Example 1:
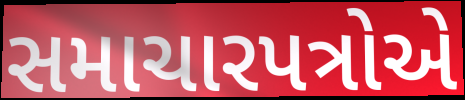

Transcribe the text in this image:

સમાચારપત્રોએ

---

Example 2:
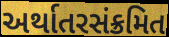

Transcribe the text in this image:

અર્થાતરસંક્રમિત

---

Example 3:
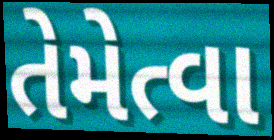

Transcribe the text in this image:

તેમેત્વા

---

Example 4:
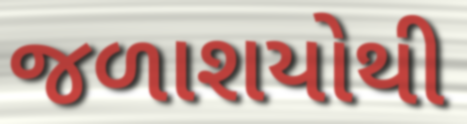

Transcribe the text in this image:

જળાશયોથી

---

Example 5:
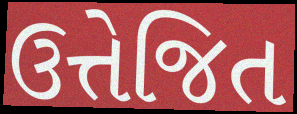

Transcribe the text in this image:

ઉત્તેજિત